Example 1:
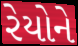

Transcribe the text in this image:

રેયોને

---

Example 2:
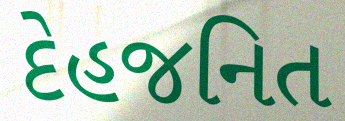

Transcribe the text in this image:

દેહજનિત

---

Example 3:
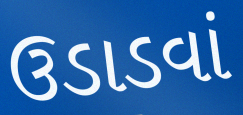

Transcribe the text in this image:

ઉડાડવાં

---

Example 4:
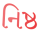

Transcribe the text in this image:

નિષ્ઠ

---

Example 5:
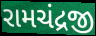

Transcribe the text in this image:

રામચંદ્રજી